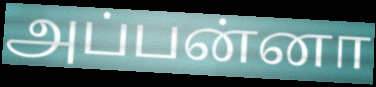
அப்பன்னா